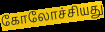
கோலோச்சியது